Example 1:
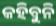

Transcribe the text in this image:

କହିବୁନି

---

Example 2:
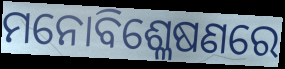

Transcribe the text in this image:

ମନୋବିଶ୍ଳେଷଣରେ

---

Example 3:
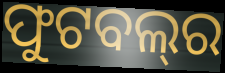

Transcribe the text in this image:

ଫୁଟବଲ୍‍ର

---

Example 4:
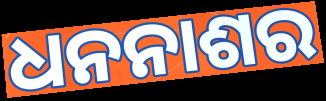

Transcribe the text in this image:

ଧନନାଶର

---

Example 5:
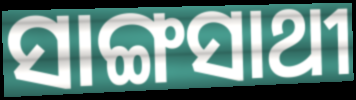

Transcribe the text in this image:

ସାଙ୍ଗସାଥୀ